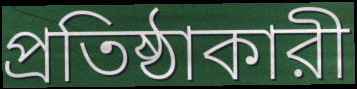
প্রতিষ্ঠাকারী